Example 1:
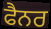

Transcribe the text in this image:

ਫੈਨਰ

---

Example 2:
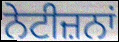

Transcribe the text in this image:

ਨੇਟੀਜ਼ਨਾਂ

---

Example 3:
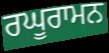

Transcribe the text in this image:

ਰਘੂਰਾਮਨ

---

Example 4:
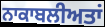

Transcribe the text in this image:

ਨਾਕਾਬਲੀਅਤਾਂ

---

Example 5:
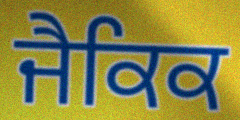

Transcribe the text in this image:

ਜੈਕਿਕ